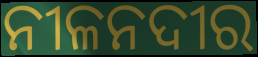
ନୀଳନଦୀର